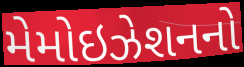
મેમોઇઝેશનનો